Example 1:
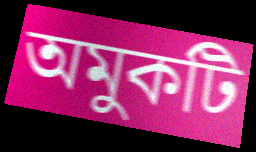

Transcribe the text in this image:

অমুকটি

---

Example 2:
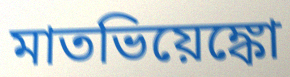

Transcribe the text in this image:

মাতভিয়েঙ্কো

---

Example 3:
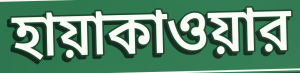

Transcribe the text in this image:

হায়াকাওয়ার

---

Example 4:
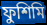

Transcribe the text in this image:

ফুশিমি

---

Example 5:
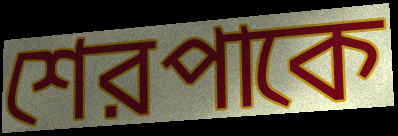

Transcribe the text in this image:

শেরপাকে